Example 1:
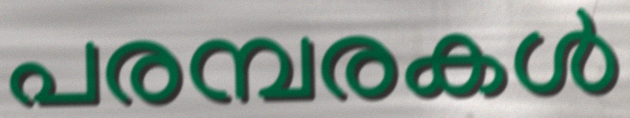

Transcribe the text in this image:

പരമ്പരകൾ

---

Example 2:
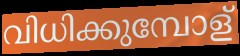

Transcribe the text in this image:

വിധിക്കുമ്പോള്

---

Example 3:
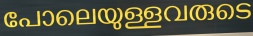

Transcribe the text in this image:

പോലെയുള്ളവരുടെ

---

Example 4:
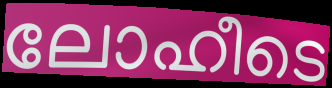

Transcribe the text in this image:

ലോഹീടെ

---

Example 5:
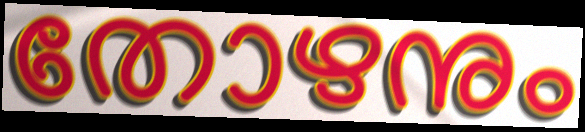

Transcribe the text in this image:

തോഴനും